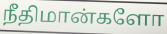
நீதிமான்களோ